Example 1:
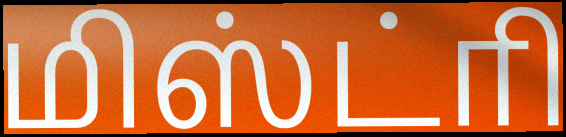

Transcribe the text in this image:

மிஸ்ட்ரி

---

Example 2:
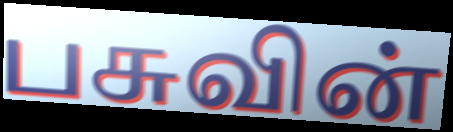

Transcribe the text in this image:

பசுவின்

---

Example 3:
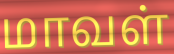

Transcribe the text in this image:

மாவள்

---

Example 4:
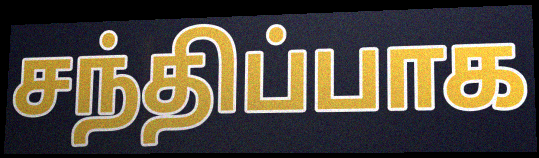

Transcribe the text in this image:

சந்திப்பாக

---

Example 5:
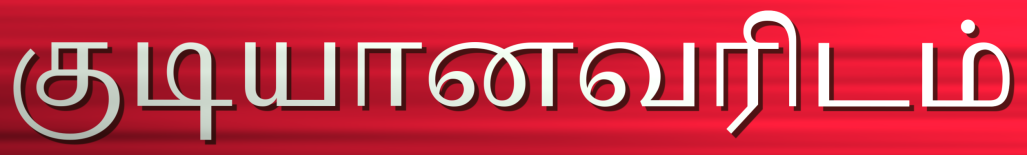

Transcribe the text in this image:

குடியானவரிடம்